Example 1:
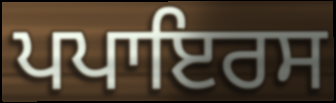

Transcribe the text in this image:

ਪਪਾਇਰਸ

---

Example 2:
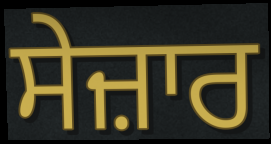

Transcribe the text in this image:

ਸੇਜ਼ਾਰ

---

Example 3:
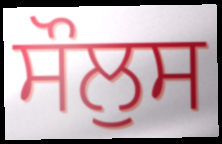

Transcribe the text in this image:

ਸੌਲੁਸ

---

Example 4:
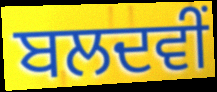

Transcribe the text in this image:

ਬਲਦਵੀਂ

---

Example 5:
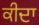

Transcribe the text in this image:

ਕੀਦਾ